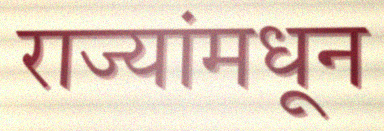
राज्यांमधून